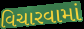
વિચારવામાં